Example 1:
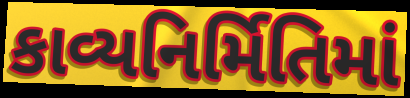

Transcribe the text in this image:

કાવ્યનિર્મિતિમાં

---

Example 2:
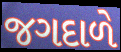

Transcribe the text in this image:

જગદાળે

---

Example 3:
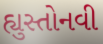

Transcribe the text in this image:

હ્યુસ્તોનવી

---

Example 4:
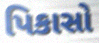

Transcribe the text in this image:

પિકાસો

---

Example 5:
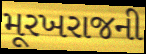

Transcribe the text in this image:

મૂરખરાજની